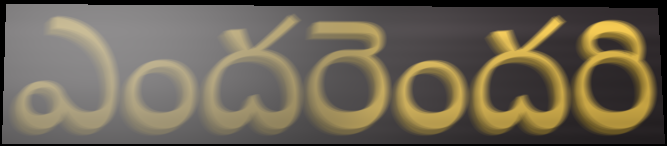
ఎందరెందరి